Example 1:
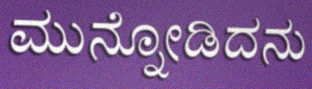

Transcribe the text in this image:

ಮುನ್ನೋಡಿದನು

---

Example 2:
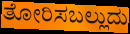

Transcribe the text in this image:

ತೋರಿಸಬಲ್ಲುದು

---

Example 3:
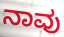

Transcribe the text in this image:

ನಾವು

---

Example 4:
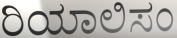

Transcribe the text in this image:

ರಿಯಾಲಿಸಂ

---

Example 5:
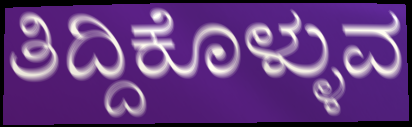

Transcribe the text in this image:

ತಿದ್ದಿಕೊಳ್ಳುವ